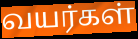
வயர்கள்